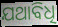
ଯଥାବିଧି